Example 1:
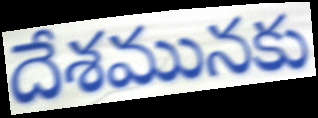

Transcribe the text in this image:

దేశమునకు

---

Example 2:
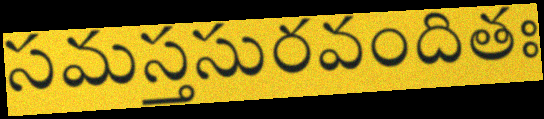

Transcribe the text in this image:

సమస్తసురవందితః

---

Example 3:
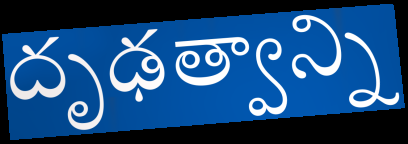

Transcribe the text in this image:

దృఢత్వాన్ని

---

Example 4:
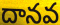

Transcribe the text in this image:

దానవ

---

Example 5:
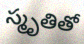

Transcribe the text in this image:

స్మృతితో